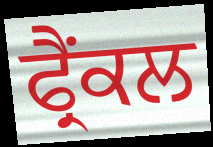
ਫ੍ਰੈਂਕਲ